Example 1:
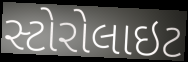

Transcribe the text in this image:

સ્ટોરોલાઇટ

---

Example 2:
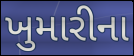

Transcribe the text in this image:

ખુમારીના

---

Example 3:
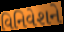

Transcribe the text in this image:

વિનિવેશને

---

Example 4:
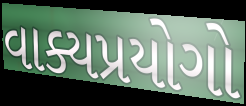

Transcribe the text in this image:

વાક્યપ્રયોગો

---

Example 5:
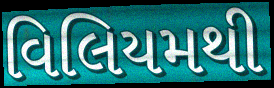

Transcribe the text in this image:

વિલિયમથી